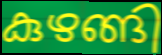
കുഴങ്ങി